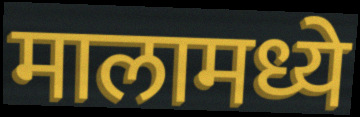
मालामध्ये